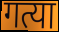
गत्या